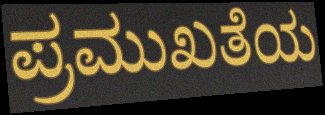
ಪ್ರಮುಖತೆಯ